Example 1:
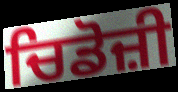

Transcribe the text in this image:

ਚਿਡੋਜ਼ੀ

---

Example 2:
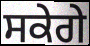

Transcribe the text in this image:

ਸਕੇਗੇ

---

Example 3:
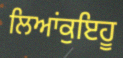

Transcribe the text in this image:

ਲਿਆਂਕੁਇਹੂ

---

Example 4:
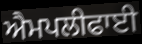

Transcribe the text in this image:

ਐਮਪਲੀਫਾਈ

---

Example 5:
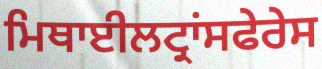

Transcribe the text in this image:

ਮਿਥਾਈਲਟ੍ਰਾਂਸਫੇਰੇਸ